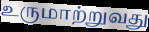
உருமாற்றுவது